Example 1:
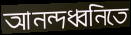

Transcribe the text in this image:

আনন্দধ্বনিতে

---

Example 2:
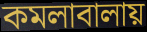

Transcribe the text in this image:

কমলাবালায়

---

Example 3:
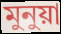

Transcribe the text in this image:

মুনুয়া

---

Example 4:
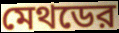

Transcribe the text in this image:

মেথডের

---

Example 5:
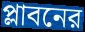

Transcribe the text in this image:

প্লাবনের